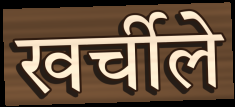
खर्चीले